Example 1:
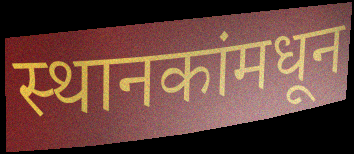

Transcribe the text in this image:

स्थानकांमधून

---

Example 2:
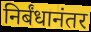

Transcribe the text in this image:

निर्बंधानंतर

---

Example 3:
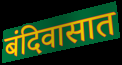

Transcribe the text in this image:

बंदिवासात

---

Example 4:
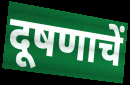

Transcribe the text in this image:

दूषणाचें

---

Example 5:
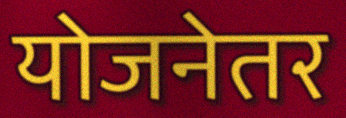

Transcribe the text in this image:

योजनेतर